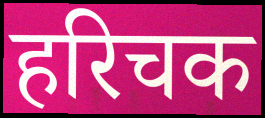
हरिचक